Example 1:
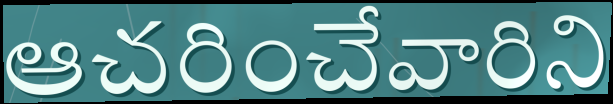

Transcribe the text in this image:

ఆచరించేవారిని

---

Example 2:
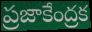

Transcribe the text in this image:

ప్రజాకేంద్రక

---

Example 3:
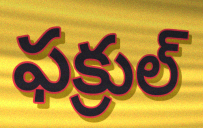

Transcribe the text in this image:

ఫక్రుల్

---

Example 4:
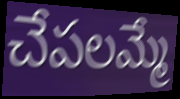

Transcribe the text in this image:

చేపలమ్మే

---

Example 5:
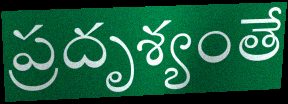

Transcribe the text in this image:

ప్రదృశ్యంతే